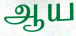
ஆய